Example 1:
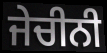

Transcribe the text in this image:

ਜੇਚੀਨੀ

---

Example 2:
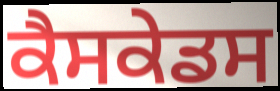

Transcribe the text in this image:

ਕੈਸਕੇਡਸ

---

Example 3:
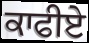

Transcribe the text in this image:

ਕਾਫੀਏ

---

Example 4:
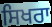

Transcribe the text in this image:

ਸਿਖਰਾ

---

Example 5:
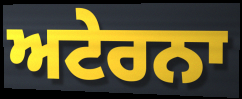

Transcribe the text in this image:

ਅਟੇਰਨਾ